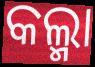
କଲ୍ମା